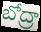
బోద్రా